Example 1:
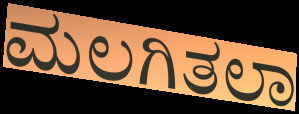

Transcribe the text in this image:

ಮಲಗಿತಲಾ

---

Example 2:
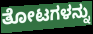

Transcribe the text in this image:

ತೋಟಗಳನ್ನು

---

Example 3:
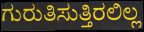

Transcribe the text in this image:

ಗುರುತಿಸುತ್ತಿರಲಿಲ್ಲ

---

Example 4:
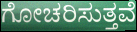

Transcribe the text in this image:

ಗೋಚರಿಸುತ್ತವೆ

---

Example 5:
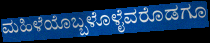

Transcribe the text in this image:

ಮಹಿಳೆಯೊಬ್ಬಳೊಳೈವರೊಡಗೂ